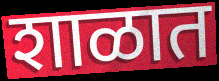
शाळात